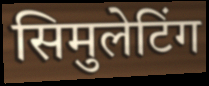
सिमुलेटिंग